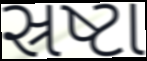
સ્રષ્ટા